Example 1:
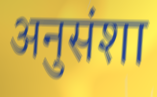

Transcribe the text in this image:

अनुसंशा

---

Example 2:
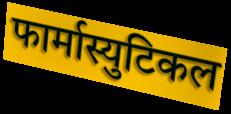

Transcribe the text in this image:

फार्मास्युटिकल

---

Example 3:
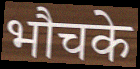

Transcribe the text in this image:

भौचके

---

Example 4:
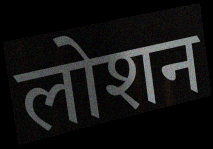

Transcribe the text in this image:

लोशन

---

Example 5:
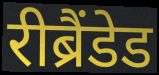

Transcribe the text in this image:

रीब्रैंडेड